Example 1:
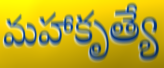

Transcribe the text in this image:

మహాకృత్యే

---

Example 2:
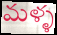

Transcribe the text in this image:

మళ్ళ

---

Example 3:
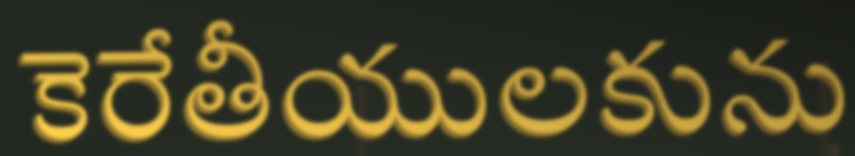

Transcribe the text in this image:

కెరేతీయులకును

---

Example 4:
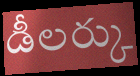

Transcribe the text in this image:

డీలర్కు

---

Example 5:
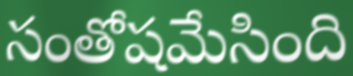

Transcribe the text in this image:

సంతోషమేసింది